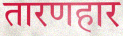
तारणहार